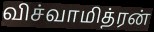
விச்வாமித்ரன்